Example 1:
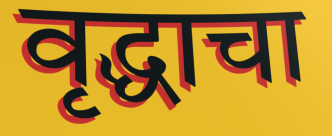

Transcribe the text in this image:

वृद्धाचा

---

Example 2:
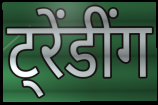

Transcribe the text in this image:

ट्रेंडींग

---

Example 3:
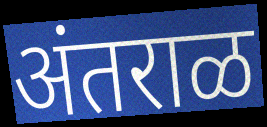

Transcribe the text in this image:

अंतराळ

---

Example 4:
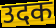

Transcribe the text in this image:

उदक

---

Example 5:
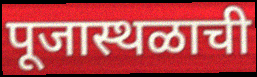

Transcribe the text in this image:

पूजास्थळाची